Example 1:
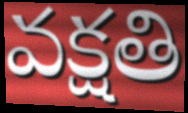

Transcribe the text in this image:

వక్షతి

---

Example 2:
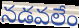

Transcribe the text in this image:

నడవలేం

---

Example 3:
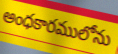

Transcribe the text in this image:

అంధకారములోను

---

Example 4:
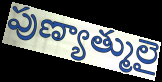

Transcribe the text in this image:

పుణ్యాత్ములై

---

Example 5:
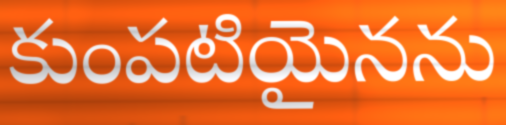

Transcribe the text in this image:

కుంపటియైనను